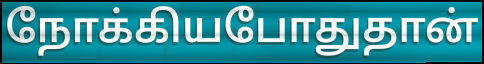
நோக்கியபோதுதான்